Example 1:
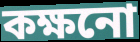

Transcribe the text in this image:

কক্ষনো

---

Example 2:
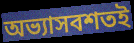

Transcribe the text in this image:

অভ্যাসবশতই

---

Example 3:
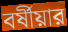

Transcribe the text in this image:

বর্ষীয়ার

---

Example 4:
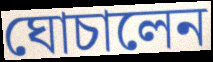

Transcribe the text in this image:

ঘোচালেন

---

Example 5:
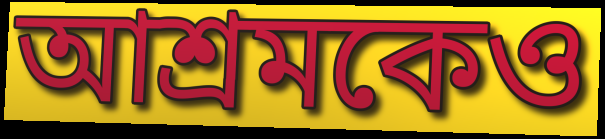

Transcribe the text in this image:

আশ্রমকেও